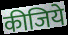
कीजिये